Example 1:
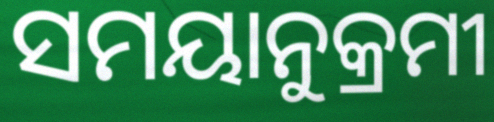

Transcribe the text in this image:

ସମୟାନୁକ୍ରମୀ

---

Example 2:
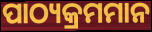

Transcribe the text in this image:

ପାଠ୍ୟକ୍ରମମାନ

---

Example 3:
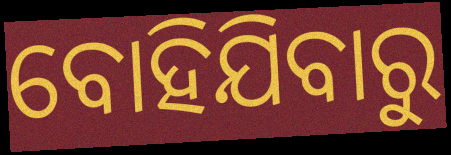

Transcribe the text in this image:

ବୋହିଯିବାରୁ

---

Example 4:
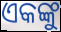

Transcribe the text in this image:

ଏକଙ୍କୁ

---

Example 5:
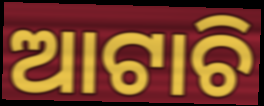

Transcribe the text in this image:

ଆଟାଚି